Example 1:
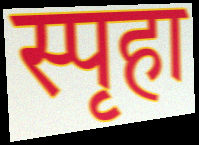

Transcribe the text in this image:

स्पृहा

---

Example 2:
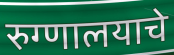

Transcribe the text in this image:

रुग्णालयाचे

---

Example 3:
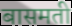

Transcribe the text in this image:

बासमती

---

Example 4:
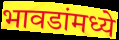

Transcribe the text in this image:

भावडांमध्ये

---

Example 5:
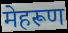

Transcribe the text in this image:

मेहरूण